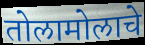
तोलामोलाचे